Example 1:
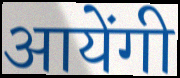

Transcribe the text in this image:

आयेंगी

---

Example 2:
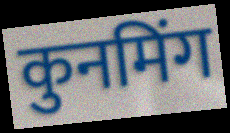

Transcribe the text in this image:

कुनमिंग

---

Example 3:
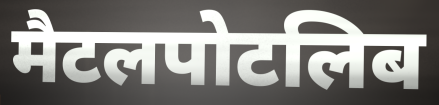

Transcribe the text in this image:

मैटलपोटलिब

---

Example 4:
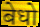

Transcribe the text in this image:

बेधो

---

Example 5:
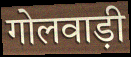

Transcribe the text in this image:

गोलवाड़ी